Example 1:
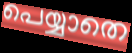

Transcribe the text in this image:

പെയ്യാതെ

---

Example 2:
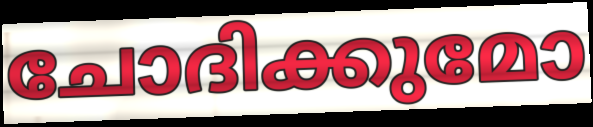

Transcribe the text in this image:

ചോദിക്കുമോ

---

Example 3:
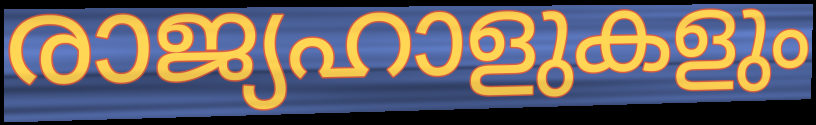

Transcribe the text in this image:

രാജ്യഹാളുകളും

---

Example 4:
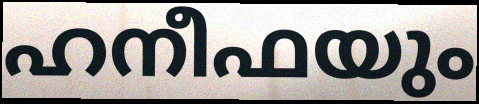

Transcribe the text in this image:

ഹനീഫയും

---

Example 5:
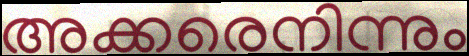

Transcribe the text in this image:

അക്കരെനിന്നും